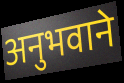
अनुभवाने